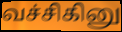
வச்சிகினு